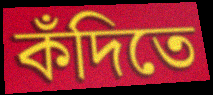
কঁদিতে